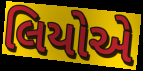
લિયોએ